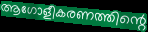
ആഗോളീകരണത്തിന്റെ